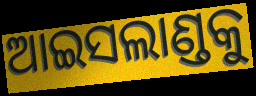
ଆଇସଲାଣ୍ଡକୁ